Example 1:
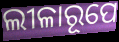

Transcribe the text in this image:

ଲୀଳାରୂପେ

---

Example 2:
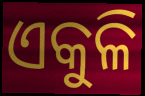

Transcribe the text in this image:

ଏକୁଳି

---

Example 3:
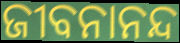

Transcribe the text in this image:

ଜୀବନାନନ୍ଦ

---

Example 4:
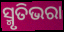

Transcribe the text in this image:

ସ୍ମୃତିଭରା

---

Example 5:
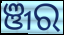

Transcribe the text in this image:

ଞ୍ଜର